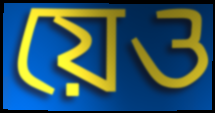
য়েও